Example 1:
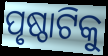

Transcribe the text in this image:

ପୃଷ୍ଠାଟିକୁ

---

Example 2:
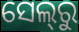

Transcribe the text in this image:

ସେଲ୍‌ରୁ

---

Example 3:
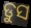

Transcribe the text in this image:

ଡୁସ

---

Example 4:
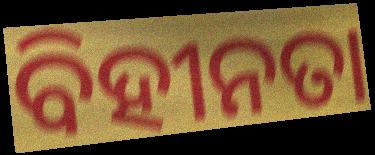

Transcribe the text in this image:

ବିହୀନତା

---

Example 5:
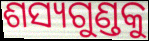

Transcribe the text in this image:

ଶସ୍ୟଗୁଣ୍ଡକୁ